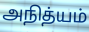
அநித்யம்